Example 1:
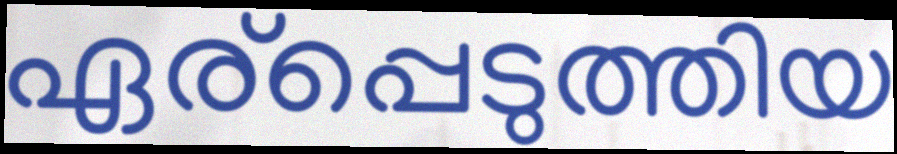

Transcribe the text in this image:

ഏര്പ്പെടുത്തിയ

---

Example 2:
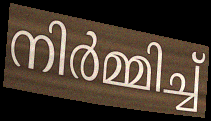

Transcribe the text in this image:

നിർമ്മിച്ച്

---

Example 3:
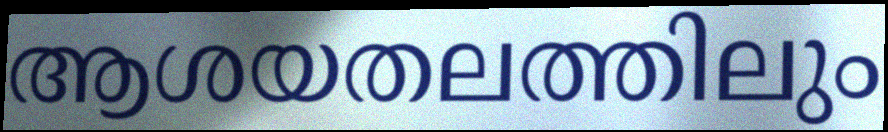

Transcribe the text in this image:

ആശയതലത്തിലും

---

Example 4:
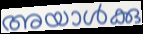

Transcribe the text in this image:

അയാൾക്കു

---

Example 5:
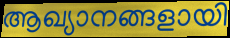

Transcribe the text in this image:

ആഖ്യാനങ്ങളായി